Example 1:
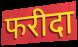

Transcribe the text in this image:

फरीदा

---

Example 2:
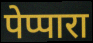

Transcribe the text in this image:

पेप्पारा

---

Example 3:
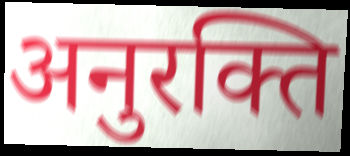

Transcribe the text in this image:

अनुरक्ति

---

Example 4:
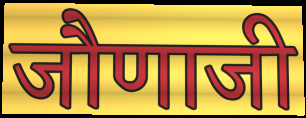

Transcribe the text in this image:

जौणाजी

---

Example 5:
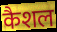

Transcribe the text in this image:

कैशल